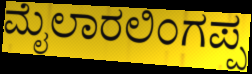
ಮೈಲಾರಲಿಂಗಪ್ಪ